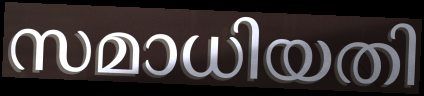
സമാധിയതി